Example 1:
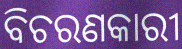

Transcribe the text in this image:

ବିଚରଣକାରୀ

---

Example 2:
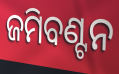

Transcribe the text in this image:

ଜମିବଣ୍ଟନ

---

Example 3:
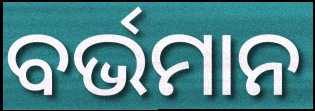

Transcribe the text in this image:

ବର୍ଭମାନ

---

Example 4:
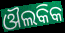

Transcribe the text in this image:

ଔଲକିକ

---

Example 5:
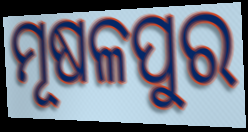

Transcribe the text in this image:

ମୂଷଳପୁର